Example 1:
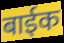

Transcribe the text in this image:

बाईक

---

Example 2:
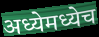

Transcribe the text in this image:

अध्येमध्येच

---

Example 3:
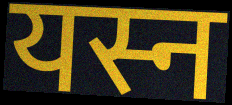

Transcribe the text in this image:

यस्न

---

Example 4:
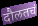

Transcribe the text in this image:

दौलतचं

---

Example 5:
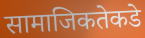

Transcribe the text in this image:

सामाजिकतेकडे